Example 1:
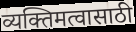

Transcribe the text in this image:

व्यक्तिमत्वासाठी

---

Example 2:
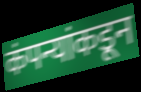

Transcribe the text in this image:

कंपन्यांकडून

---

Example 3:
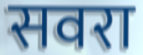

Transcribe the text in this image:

सवरा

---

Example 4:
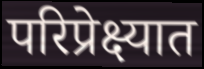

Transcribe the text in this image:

परिप्रेक्ष्यात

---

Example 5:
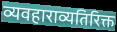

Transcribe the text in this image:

व्यवहाराव्यतिरिक्त